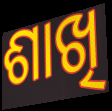
ଶାଖି